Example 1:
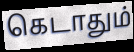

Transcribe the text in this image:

கெடாதும்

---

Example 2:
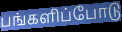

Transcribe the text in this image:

பங்களிப்போடு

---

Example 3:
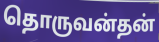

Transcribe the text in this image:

தொருவன்தன்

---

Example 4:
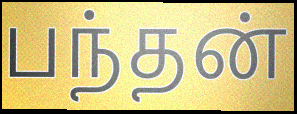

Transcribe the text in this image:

பந்தன்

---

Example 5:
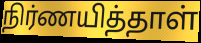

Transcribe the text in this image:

நிர்ணயித்தாள்